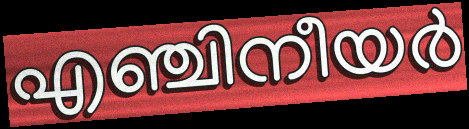
എഞ്ചിനീയർ